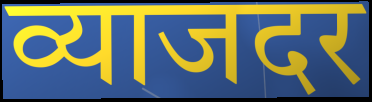
व्याजदर